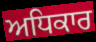
ਅਧਿਕਾਰ